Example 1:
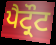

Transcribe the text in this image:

ਪੈਟ੍ਰੌਟ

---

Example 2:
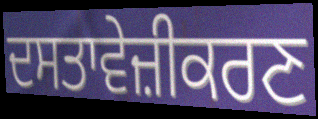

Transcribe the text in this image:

ਦਸਤਾਵੇਜ਼ੀਕਰਣ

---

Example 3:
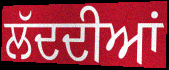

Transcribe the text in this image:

ਲੱਦਦੀਆਂ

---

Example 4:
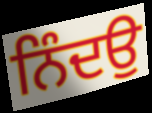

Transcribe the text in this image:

ਨਿੰਦਉ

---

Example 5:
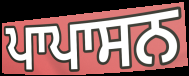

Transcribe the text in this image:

ਪਾਪਾਸਨ